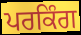
ਪਰਕਿੰਗ